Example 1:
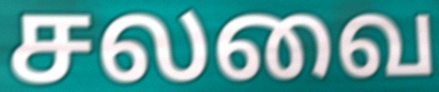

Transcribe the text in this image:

சலவை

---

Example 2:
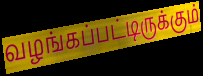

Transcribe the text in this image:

வழங்கப்பட்டிருக்கும்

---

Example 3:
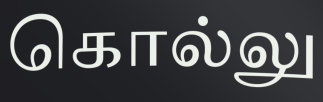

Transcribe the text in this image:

கொல்லு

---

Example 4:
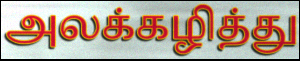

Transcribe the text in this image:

அலக்கழித்து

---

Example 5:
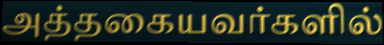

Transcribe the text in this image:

அத்தகையவர்களில்